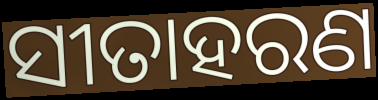
ସୀତାହରଣ